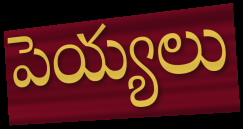
పెయ్యలు